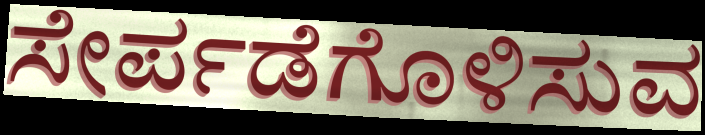
ಸೇರ್ಪಡೆಗೊಳಿಸುವ